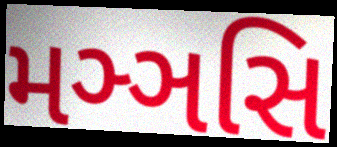
મઞ્ઞસિ